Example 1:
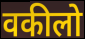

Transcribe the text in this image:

वकीलो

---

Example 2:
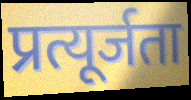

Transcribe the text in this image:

प्रत्यूर्जता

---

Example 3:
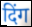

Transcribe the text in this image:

दिंग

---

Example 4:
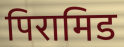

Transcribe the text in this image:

पिरामिड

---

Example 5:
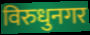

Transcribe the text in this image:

विरुधुनगर